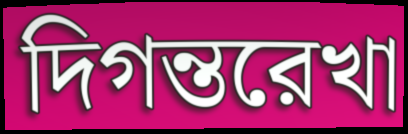
দিগন্তরেখা